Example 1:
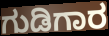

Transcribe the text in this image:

ಗುಡಿಗಾರ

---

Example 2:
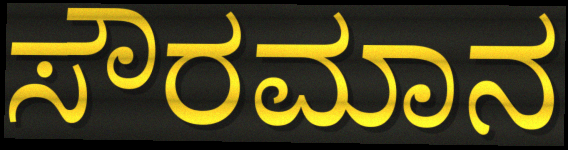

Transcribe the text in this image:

ಸೌರಮಾನ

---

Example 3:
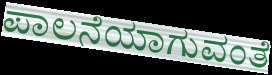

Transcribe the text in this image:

ಪಾಲನೆಯಾಗುವಂತೆ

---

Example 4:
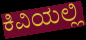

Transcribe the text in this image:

ಕಿವಿಯಲ್ಲಿ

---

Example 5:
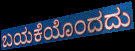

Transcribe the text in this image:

ಬಯಕೆಯೊಂದದು